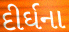
દીર્ઘના